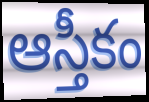
ఆస్తీకం